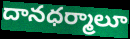
దానధర్మాలూ